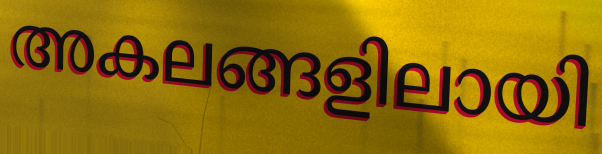
അകലങ്ങളിലായി